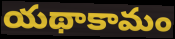
యథాకామం